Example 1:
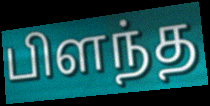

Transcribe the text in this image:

பிளந்த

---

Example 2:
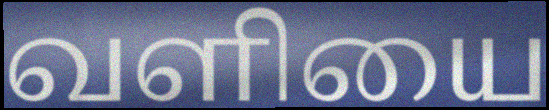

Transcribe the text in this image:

வளியை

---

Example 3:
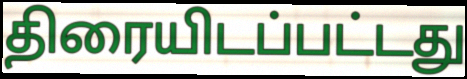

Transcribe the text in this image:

திரையிடப்பட்டது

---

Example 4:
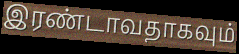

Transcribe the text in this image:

இரண்டாவதாகவும்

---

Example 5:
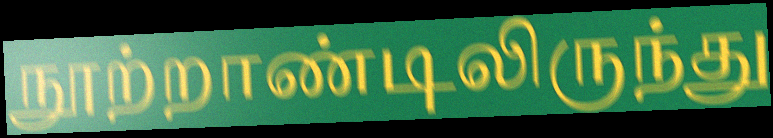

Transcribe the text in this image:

நூற்றாண்டிலிருந்து